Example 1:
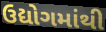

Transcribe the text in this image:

ઉદ્યોગમાંથી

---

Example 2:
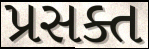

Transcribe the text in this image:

પ્રસક્ત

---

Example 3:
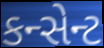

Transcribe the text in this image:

કન્સેન્ટ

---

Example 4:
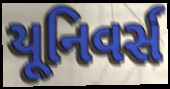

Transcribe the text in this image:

યૂનિવર્સ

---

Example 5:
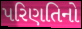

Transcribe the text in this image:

પરિણતિનો